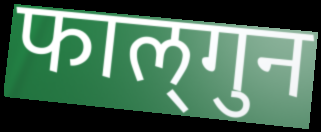
फाल्गुन